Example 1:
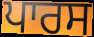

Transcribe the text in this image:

ਪਾਰਸ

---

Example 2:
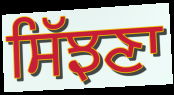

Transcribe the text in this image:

ਸਿੱਝਣਾ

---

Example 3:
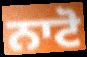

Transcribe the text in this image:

ਨਾਟੋ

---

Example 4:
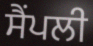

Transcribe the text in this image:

ਸੈਂਪਲੀ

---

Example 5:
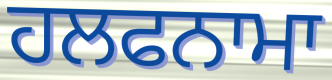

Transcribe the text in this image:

ਹਲਫਨਾਮਾ